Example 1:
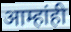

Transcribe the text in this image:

आम्हांही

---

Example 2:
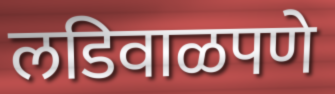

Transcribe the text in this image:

लडिवाळपणे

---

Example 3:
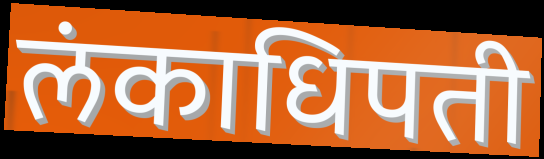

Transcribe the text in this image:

लंकाधिपती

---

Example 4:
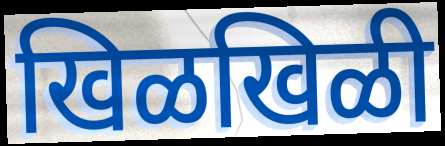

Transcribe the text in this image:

खिळखिळी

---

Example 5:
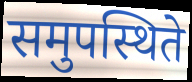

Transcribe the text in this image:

समुपस्थिते